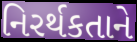
નિરર્થકતાને